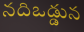
నదిఒడ్డున